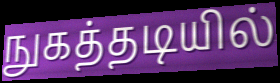
நுகத்தடியில்